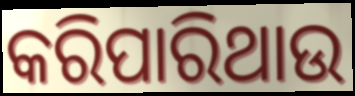
କରିପାରିଥାଉ